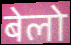
बेलो